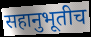
सहानुभूतीच